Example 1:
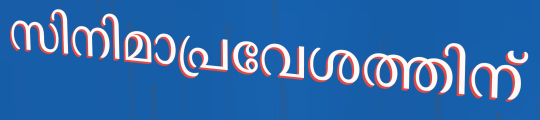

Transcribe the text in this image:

സിനിമാപ്രവേശത്തിന്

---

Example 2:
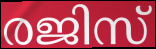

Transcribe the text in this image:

രജിസ്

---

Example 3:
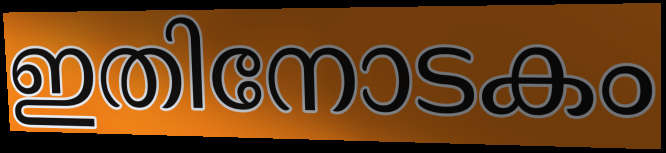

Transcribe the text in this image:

ഇതിനോടകം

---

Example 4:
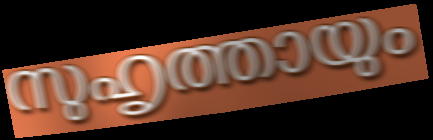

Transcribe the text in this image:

സുഹൃത്തായും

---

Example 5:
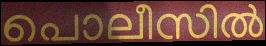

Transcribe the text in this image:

പൊലീസിൽ